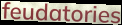
feudatories